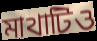
মাথাটিও